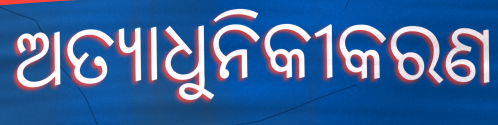
ଅତ୍ୟାଧୁନିକୀକରଣ